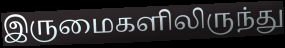
இருமைகளிலிருந்து